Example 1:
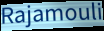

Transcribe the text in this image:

Rajamouli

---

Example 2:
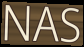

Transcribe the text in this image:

NAS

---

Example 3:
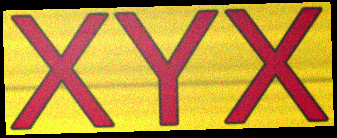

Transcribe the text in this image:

XYX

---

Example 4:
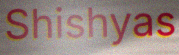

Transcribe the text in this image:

Shishyas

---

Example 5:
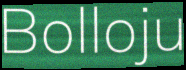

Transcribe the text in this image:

Bolloju